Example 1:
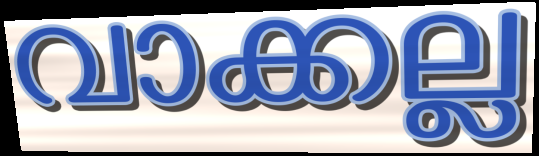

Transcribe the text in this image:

വാക്കല്ല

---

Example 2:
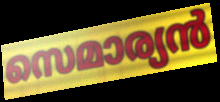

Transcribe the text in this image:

സെമാര്യൻ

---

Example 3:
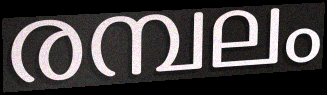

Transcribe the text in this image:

രമ്പലം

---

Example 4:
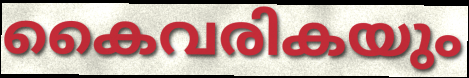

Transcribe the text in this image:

കൈവരികയും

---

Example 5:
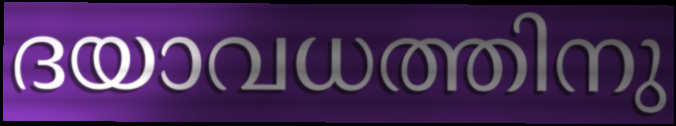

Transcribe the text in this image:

ദയാവധത്തിനു